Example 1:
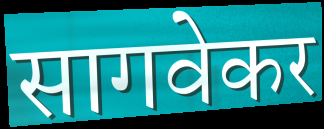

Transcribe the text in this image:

सागवेकर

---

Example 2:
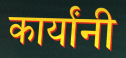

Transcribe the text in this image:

कार्यांनी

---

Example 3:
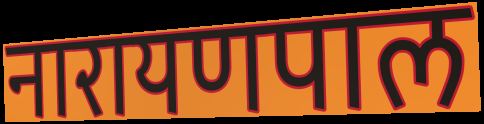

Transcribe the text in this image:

नारायणपाल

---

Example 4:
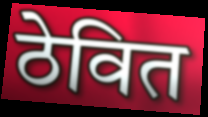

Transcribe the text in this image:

ठेवित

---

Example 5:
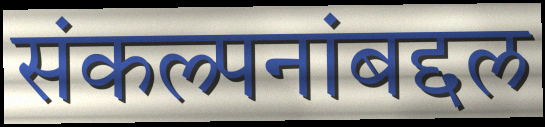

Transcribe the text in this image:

संकल्पनांबद्दल